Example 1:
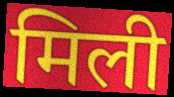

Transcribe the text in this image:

मिली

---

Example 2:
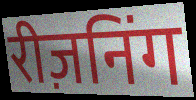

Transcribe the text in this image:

रीज़निंग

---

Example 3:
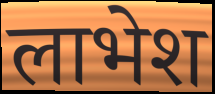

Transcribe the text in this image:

लाभेश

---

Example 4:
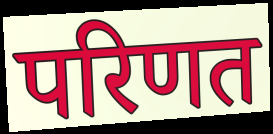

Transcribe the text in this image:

परिणत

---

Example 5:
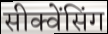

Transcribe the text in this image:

सीक्वेंसिंग